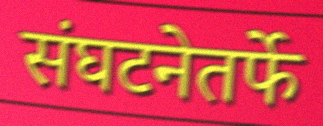
संघटनेतर्फे